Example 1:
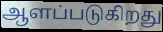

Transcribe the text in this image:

ஆளப்படுகிறது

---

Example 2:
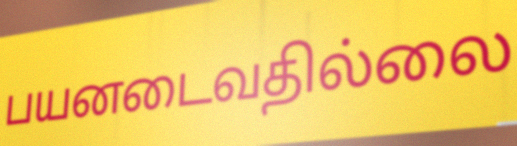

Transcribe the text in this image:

பயனடைவதில்லை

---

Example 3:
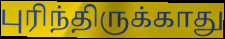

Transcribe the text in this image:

புரிந்திருக்காது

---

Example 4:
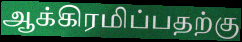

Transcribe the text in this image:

ஆக்கிரமிப்பதற்கு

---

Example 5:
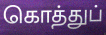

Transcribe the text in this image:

கொத்துப்